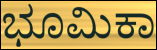
ಭೂಮಿಕಾ